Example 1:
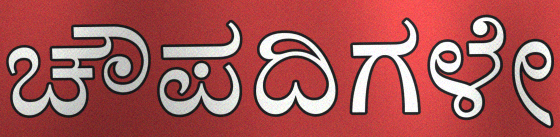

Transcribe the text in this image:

ಚೌಪದಿಗಳೇ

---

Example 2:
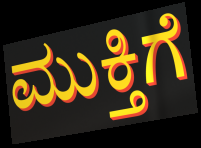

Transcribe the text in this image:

ಮುಕ್ತಿಗೆ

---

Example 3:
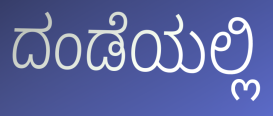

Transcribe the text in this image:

ದಂಡೆಯಲ್ಲಿ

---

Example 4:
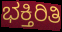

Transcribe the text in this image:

ಭಕ್ತಿರಿತಿ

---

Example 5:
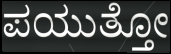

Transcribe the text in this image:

ಪಯುತ್ತೋ